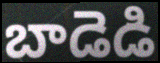
బాడెడి